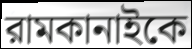
রামকানাইকে